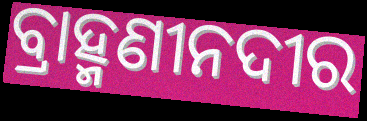
ବ୍ରାହ୍ମଣୀନଦୀର